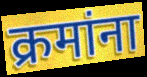
क्रमांना